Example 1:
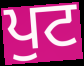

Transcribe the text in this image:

ਪੁਟ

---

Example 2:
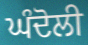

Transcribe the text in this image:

ਘੰਦੋਲੀ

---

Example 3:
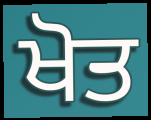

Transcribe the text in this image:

ਖੋਤ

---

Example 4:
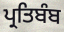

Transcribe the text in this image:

ਪ੍ਰਤਿਬੰਬ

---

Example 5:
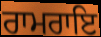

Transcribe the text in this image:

ਰਾਮਰਾਇ